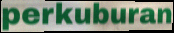
perkuburan